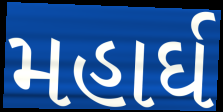
મહાર્ઘ